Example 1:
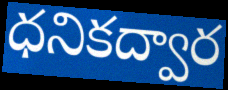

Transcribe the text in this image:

ధనికద్వార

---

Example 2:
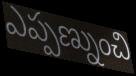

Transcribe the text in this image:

ఎప్పణ్నుంచి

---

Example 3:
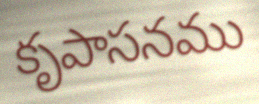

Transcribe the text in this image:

కృపాసనము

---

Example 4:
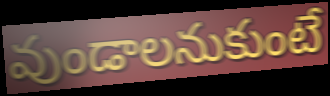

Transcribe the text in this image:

వుండాలనుకుంటే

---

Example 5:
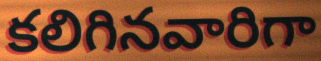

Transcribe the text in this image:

కలిగినవారిగా